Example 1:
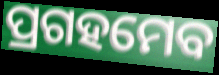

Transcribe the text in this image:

ପ୍ରଗହମେବ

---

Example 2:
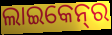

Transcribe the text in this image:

ଲାଇକେନ୍‌ର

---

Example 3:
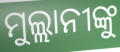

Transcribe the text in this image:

ମୁଲ୍ଲାନୀଙ୍କୁ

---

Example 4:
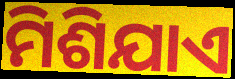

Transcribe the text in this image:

ମିଶିଯାଏ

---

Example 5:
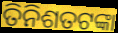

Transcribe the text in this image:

ତିନିଶତଟଙ୍କା